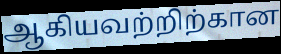
ஆகியவற்றிற்கான